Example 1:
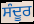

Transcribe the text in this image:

ਸੰਦੂਰ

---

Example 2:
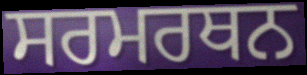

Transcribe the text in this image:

ਸਰਮਰਥਨ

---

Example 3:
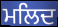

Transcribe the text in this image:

ਮਲਿਦ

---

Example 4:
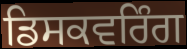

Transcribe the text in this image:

ਡਿਸਕਵਰਿੰਗ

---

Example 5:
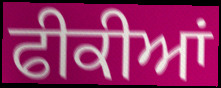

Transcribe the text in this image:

ਫੀਕੀਆਂ